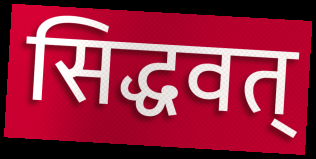
सिद्धवत्